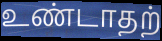
உண்டாதற்